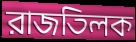
রাজতিলক